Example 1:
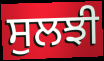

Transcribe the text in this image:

ਸੁਲਝੀ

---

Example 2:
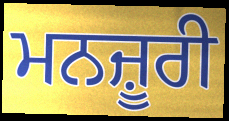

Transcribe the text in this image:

ਮਨਜ਼ੂਰੀ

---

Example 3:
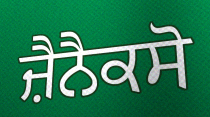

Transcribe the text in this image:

ਜ਼ੈਨੈਕਸੋ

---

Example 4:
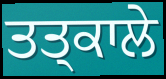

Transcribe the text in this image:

ਤਤ੍ਕਾਲੇ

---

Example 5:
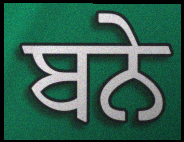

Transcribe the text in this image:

ਬਨੇ